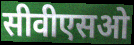
सीवीएसओ